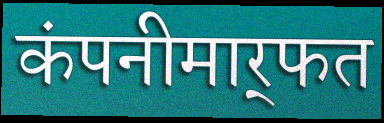
कंपनीमार्फत